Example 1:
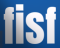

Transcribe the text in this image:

fisf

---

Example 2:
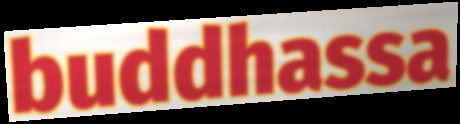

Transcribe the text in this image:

buddhassa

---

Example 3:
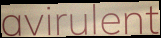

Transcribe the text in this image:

avirulent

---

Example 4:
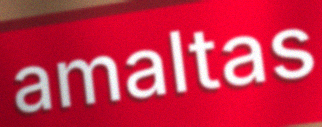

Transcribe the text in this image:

amaltas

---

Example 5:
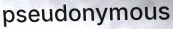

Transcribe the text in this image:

pseudonymous